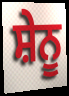
ਸ਼ੇਨੂ